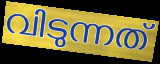
വിടുന്നത്